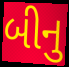
બીનુ